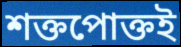
শক্তপোক্তই